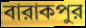
বারাকপুর